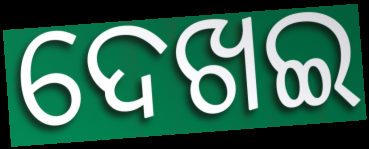
ଦେଖଇ